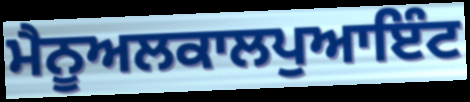
ਮੈਨੂਅਲਕਾਲਪੁਆਇੰਟ